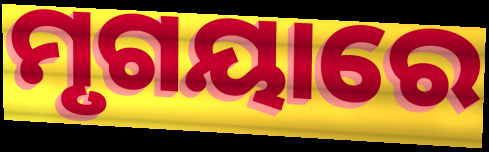
ମୃଗୟାରେ